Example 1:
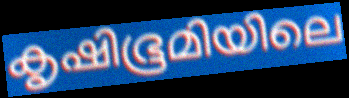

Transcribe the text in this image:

കൃഷിഭൂമിയിലെ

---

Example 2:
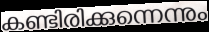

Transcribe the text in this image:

കണ്ടിരിക്കുന്നെന്നും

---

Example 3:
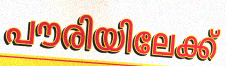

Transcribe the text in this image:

പൗരിയിലേക്ക്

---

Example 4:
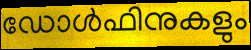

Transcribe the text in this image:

ഡോൾഫിനുകളും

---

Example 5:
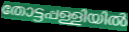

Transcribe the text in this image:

തോട്ടപ്പള്ളിയിൽ